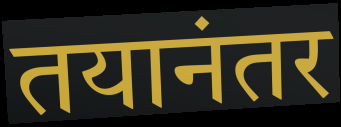
तयानंतर